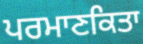
ਪਰਮਾਣਕਿਤਾ